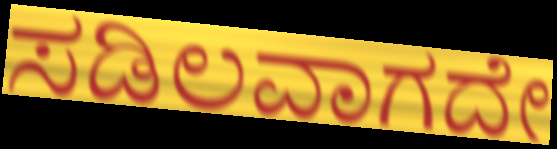
ಸಡಿಲವಾಗದೇ